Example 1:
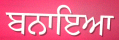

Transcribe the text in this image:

ਬਨਾਇਆ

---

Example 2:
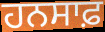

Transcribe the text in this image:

ਹਨਸਾਫ਼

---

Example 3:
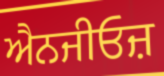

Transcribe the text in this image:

ਐਨਜੀਓਜ਼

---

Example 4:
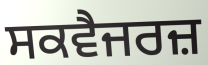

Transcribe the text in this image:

ਸਕਵੈਜਰਜ਼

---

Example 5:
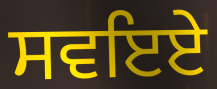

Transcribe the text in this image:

ਸਵਇਏ